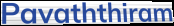
Pavaththiram